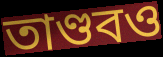
তাণ্ডবও